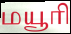
மயூரி